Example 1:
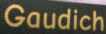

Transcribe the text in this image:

Gaudich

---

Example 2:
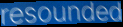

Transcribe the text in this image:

resounded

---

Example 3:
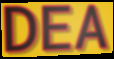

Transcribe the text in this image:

DEA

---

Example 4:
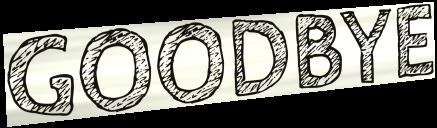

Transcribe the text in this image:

GOODBYE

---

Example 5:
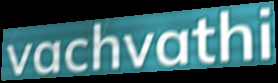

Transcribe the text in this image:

vachvathi